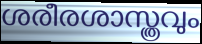
ശരീരശാസ്ത്രവും